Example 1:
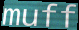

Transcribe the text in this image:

muff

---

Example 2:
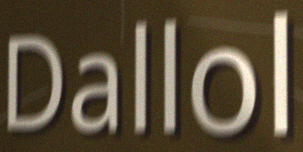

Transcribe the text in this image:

Dallol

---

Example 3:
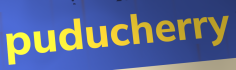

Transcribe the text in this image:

puducherry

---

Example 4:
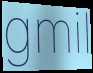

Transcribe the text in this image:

gmil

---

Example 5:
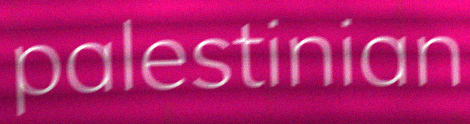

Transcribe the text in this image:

palestinian